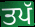
ਤਪੱ